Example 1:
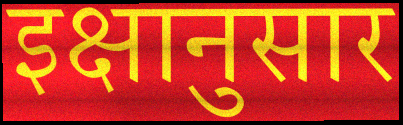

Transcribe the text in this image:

इक्षानुसार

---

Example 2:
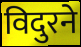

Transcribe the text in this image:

विदुरने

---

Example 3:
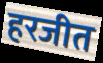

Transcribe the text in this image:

हरजीत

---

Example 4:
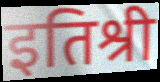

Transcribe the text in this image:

इतिश्री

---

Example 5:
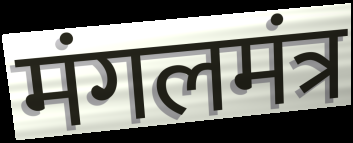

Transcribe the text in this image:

मंगलमंत्र